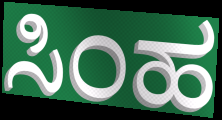
ಸಿಂಹ